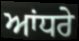
ਆਂਧਰੇ